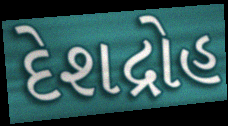
દેશદ્રોહ